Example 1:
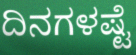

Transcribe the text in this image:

ದಿನಗಳಷ್ಟೆ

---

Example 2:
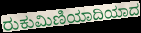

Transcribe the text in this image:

ರುಕುಮಿಣಿಯಾದಿಯಾದ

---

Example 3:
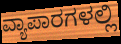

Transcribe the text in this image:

ವ್ಯಾಪಾರಗಳಲ್ಲಿ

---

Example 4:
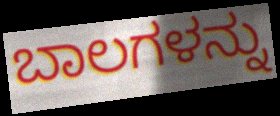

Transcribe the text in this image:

ಬಾಲಗಳನ್ನು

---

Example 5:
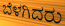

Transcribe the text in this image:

ಬೆಳಗಿದರು